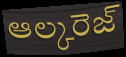
ఆల్కరెజ్